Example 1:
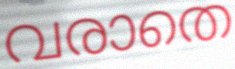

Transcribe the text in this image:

വരാതെ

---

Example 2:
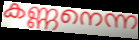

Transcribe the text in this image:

കണ്ണനെന്ന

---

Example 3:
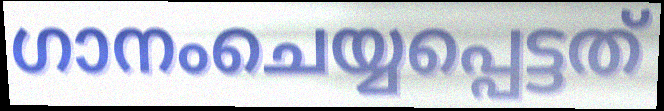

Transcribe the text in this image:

ഗാനംചെയ്യപ്പെട്ടത്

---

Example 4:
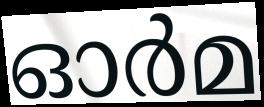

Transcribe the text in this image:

ഓർമ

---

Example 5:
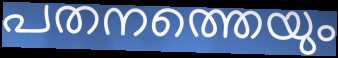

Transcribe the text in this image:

പതനത്തെയും